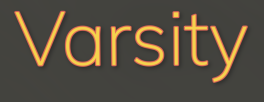
Varsity